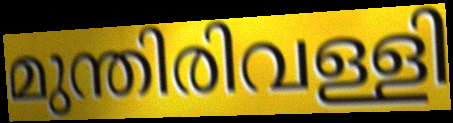
മുന്തിരിവള്ളി